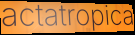
actatropica